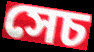
সেচ